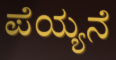
ಪೆಯ್ಯನೆ